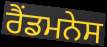
ਰੈਂਡਮਨੇਸ